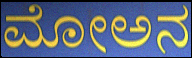
ಮೋಅನ